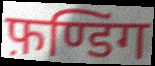
फ़ण्डिंग